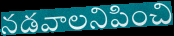
నడవాలనిపించి